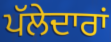
ਪੱਲੇਦਾਰਾਂ